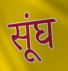
सूंघ